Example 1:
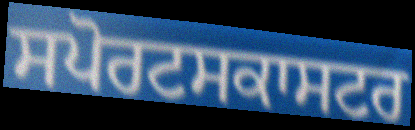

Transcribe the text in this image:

ਸਪੋਰਟਸਕਾਸਟਰ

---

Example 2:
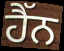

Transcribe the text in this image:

ਹੈੱਨ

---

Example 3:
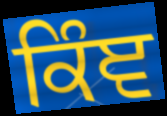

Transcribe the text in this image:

ਕਿੰਞ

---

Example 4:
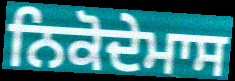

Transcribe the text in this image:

ਨਿਕੋਦੇਮਾਸ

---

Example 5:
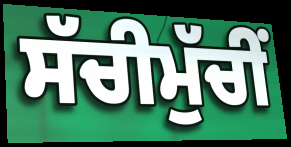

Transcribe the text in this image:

ਸੱਚੀਮੁੱਚੀਂ